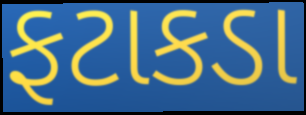
ફટાકડા